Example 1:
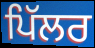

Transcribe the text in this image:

ਪਿੱਲਰ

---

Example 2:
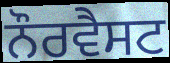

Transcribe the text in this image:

ਨੌਰਵੈਸਟ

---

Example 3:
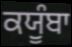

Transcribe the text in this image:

ਕਯੂੰਬਾ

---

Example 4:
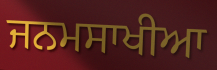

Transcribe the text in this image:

ਜਨਮਸਾਖੀਆ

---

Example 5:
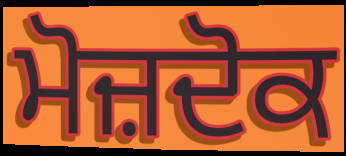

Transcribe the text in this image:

ਮੋਜ਼ਦੋਕ